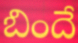
బిందే